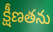
క్షీణతను